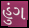
હુંગ